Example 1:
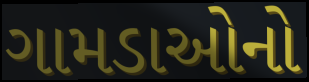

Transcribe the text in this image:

ગામડાઓનો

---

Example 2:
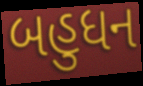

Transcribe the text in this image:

બહુધન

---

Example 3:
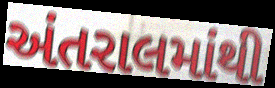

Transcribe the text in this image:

અંતરાલમાંથી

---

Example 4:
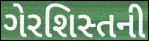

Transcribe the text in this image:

ગેરશિસ્તની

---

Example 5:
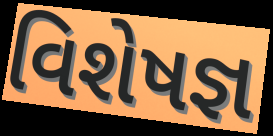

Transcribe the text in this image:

વિશેષજ્ઞ